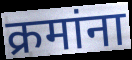
क्रमांना